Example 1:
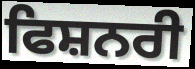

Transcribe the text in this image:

ਫਿਸ਼ਨਰੀ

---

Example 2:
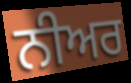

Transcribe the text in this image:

ਨੀਅਰ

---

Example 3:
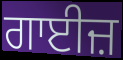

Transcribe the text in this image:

ਗਾਈਜ਼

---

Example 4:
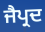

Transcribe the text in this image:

ਜੈਪ੍ਰਦ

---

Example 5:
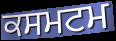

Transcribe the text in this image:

ਕਸਮਟਮ